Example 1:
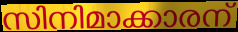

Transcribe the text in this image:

സിനിമാക്കാരന്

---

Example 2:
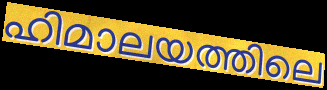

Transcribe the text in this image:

ഹിമാലയത്തിലെ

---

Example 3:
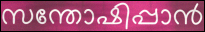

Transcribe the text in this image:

സന്തോഷിപ്പാൻ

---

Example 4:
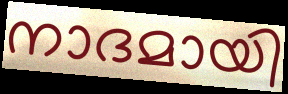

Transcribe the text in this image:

നാദമായി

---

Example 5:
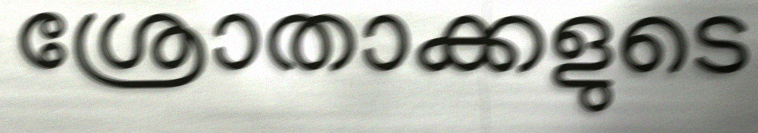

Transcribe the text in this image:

ശ്രോതാക്കളുടെ